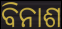
ବିନାଶ